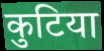
कुटिया